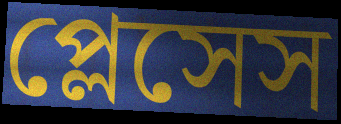
প্লেসেস